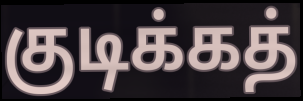
குடிக்கத்